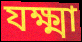
যক্ষ্মা